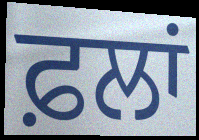
ਫ਼ਲਾਂ